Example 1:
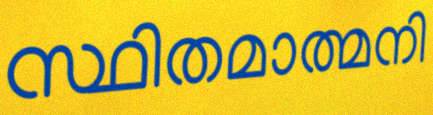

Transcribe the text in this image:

സ്ഥിതമാത്മനി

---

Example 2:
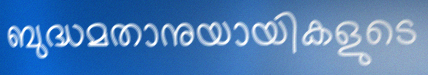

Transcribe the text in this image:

ബുദ്ധമതാനുയായികളുടെ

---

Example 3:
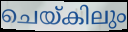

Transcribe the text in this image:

ചെയ്കിലും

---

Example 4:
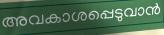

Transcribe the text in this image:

അവകാശപ്പെടുവാൻ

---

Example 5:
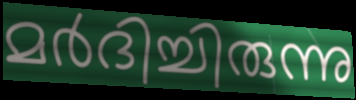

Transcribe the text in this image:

മർദിച്ചിരുന്നു